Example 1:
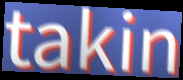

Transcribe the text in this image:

takin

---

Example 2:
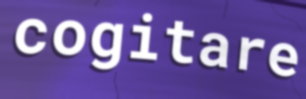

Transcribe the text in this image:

cogitare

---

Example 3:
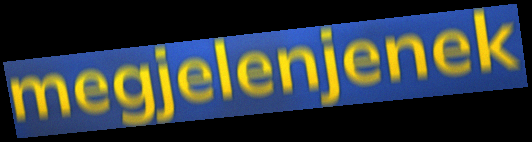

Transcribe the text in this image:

megjelenjenek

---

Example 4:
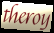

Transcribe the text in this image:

theroy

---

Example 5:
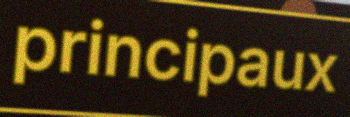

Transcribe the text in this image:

principaux